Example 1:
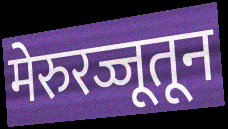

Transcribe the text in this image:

मेरुरज्जूतून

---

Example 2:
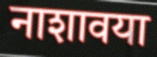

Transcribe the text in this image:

नाशावया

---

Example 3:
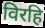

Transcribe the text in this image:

विरहि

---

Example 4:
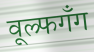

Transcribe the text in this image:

वूल्फगँग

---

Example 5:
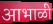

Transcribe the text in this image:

आभाळी